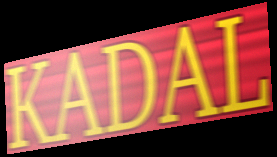
KADAL